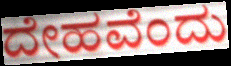
ದೇಹವೆಂದು